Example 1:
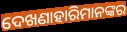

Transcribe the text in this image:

ଦେଖଣାହାରିମାନଙ୍କର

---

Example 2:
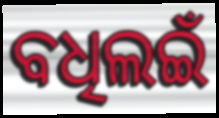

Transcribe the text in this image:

ବଧିଲଇଁ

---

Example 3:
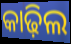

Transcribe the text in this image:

କାଢ଼ିଲ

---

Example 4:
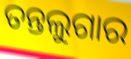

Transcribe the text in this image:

ତନ୍ତଲୁଗାର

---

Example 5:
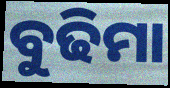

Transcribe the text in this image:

ବୁଢିମା